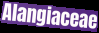
Alangiaceae